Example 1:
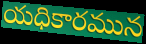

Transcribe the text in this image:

యధికారమున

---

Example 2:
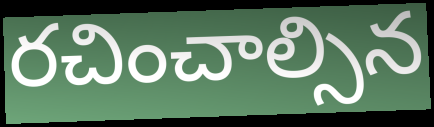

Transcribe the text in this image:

రచించాల్సిన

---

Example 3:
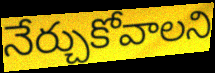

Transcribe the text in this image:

నేర్చుకోవాలని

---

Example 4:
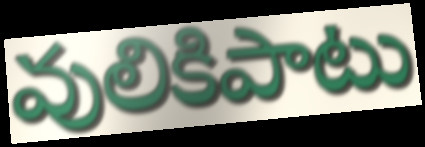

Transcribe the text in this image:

వులికిపాటు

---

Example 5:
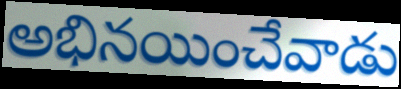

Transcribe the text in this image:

అభినయించేవాడు